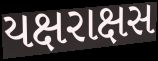
યક્ષરાક્ષસ